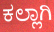
ಕಲ್ಲಾಗಿ